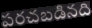
పరచబడినది